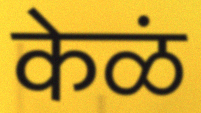
केळं